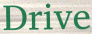
Drive